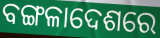
ବଙ୍ଗଳାଦେଶରେ